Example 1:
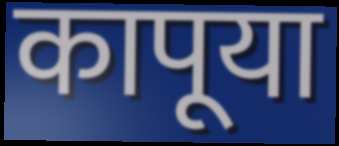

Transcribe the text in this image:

कापूया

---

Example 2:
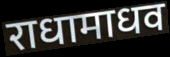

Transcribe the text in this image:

राधामाधव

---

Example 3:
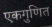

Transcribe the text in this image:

एकगुणित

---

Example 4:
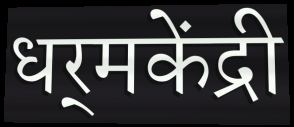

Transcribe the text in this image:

धर्मकेंद्री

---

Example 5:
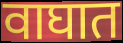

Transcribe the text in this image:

वाघात